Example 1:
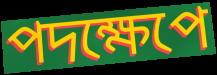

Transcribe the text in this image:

পদক্ষেপে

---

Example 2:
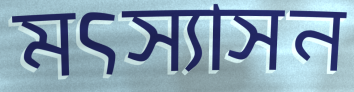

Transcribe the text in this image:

মৎস্যাসন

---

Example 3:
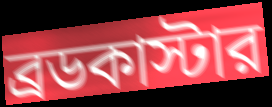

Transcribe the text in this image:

ব্রডকাস্টার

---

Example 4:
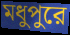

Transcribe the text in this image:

মধুপুরে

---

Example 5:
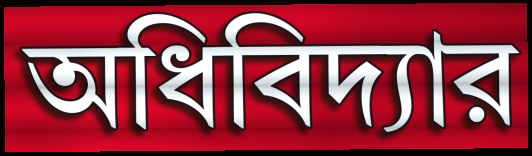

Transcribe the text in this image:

অধিবিদ্যার